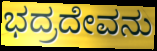
ಭದ್ರದೇವನು